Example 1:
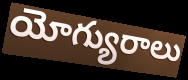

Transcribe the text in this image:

యోగ్యురాలు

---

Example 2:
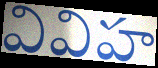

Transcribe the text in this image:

వివిహ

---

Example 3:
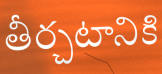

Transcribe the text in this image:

తీర్చటానికి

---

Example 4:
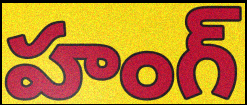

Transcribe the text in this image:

హంగ్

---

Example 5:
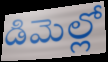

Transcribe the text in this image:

డిమెల్లో